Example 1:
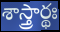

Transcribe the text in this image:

శాస్త్రార్థః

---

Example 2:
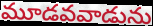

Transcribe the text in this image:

మూడవవాడును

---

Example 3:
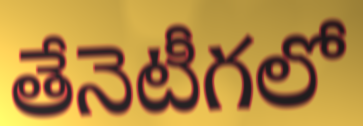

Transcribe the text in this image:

తేనెటీగలో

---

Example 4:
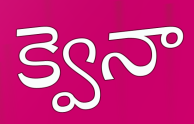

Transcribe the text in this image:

క్వెనా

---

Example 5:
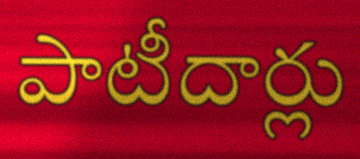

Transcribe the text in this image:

పాటీదార్లు